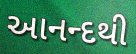
આનન્દથી